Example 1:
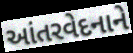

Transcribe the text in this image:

આંતરવેદનાને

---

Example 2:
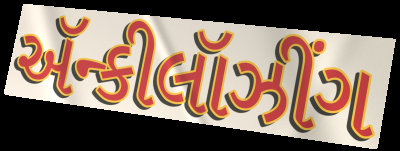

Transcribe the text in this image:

ઍન્કીલૉઝીંગ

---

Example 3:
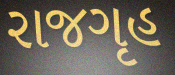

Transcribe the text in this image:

રાજગૃહ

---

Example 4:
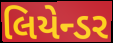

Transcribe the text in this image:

લિયેન્ડર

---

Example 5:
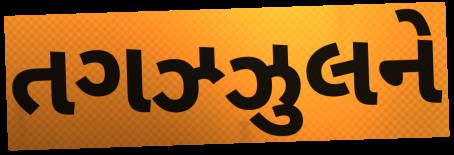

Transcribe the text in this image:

તગઝ્ઝુલને